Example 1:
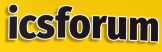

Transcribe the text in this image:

icsforum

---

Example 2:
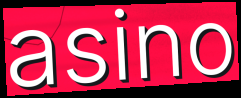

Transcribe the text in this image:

asino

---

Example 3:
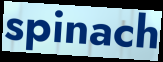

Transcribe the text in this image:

spinach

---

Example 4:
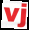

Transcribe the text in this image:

vj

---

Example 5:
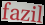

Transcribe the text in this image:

fazil